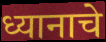
ध्यानाचे